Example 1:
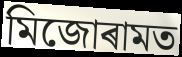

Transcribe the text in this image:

মিজোৰামত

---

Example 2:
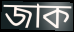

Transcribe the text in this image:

জাক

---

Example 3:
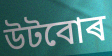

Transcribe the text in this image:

উটবোৰ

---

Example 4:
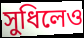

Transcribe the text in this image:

সুধিলেও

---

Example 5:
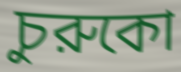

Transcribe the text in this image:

চুৰুকো